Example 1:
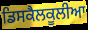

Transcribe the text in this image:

ਡਿਸਕੈਲਕੂਲੀਆ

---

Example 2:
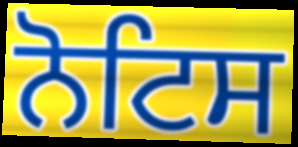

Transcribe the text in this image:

ਨੋਟਿਸ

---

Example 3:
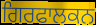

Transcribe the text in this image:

ਗਿਰਫਾਲਕਨ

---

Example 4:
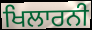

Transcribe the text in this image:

ਖਿਲਾਰਨੀ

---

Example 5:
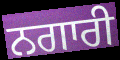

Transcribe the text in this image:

ਨਗਾਰੀ